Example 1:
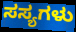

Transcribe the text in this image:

ಸಸ್ಯಗಳು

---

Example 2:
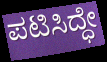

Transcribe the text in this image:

ಪಟಿಸಿದ್ಧೇ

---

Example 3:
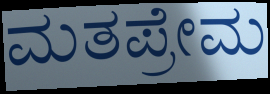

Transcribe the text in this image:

ಮತಪ್ರೇಮ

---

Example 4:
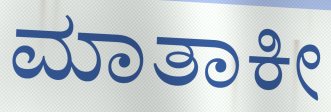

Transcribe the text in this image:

ಮಾತಾಕೀ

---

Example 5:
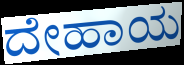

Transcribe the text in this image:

ದೇಹಾಯ